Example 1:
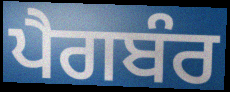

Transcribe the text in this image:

ਪੈਗਬੰਰ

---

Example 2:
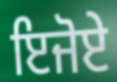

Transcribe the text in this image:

ਇਜੋਏ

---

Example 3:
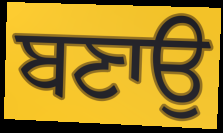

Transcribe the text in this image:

ਬਣਾਉ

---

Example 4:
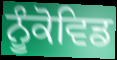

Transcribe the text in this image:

ਨੂੰਕੋਵਿਡ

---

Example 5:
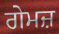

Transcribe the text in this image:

ਗੇਮਜ਼